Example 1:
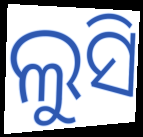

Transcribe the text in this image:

ଲୁସି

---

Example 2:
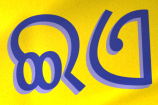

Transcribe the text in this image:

ଇଏ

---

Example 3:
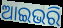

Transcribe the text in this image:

ଆଇଭରି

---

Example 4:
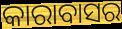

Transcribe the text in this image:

କାରାବାସର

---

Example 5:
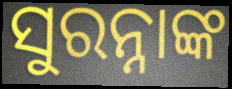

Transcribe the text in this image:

ସୁରନ୍ନାଙ୍କ